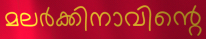
മലർക്കിനാവിന്റെ